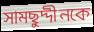
সামছুদ্দীনকে